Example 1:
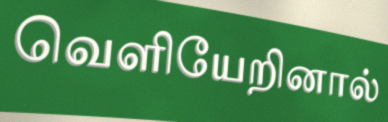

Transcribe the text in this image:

வெளியேறினால்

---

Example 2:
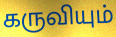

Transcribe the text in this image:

கருவியும்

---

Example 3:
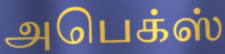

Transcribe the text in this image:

அபெக்ஸ்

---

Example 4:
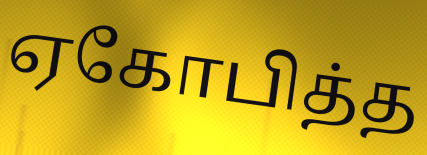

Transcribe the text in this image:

ஏகோபித்த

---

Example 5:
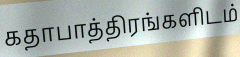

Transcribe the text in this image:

கதாபாத்திரங்களிடம்